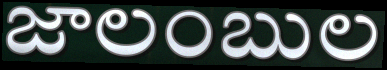
జాలంబుల